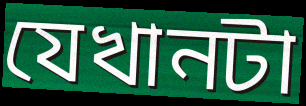
যেখানটা